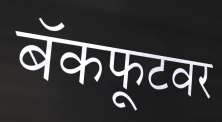
बॅकफूटवर